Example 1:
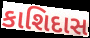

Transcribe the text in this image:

કાશિદાસ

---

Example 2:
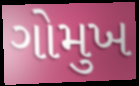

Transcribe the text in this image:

ગોમુખ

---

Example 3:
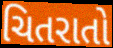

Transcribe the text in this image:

ચિતરાતો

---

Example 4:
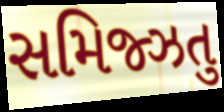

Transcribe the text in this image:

સમિજ્ઝતુ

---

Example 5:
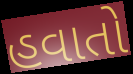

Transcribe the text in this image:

હવાતો